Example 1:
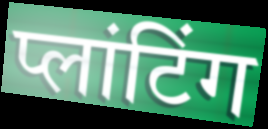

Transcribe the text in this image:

प्लांटिंग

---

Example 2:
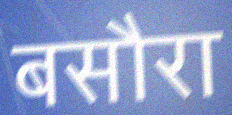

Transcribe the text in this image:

बसौरा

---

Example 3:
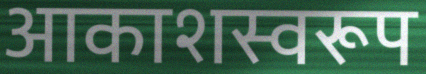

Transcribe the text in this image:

आकाशस्वरूप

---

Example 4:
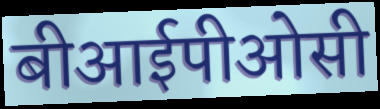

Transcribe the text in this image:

बीआईपीओसी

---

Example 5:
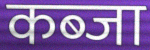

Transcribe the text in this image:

कब्‍जा